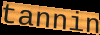
tannin